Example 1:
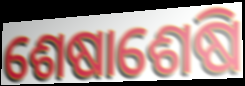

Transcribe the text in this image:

ଶେଷାଶେଷି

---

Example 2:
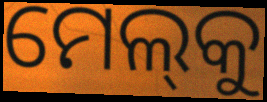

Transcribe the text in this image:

ମେଲ୍‌କୁ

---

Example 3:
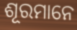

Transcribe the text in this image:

ଶୂରମାନେ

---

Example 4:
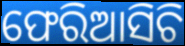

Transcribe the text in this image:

ଫେରିଆସିଚି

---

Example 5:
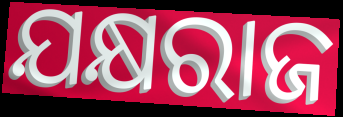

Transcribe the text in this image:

ଯକ୍ଷରାଜ